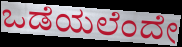
ಒಡೆಯಲೆಂದೇ